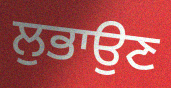
ਲੁਭਾਉਣ